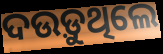
ଦଉଡ଼ୁଥିଲେ